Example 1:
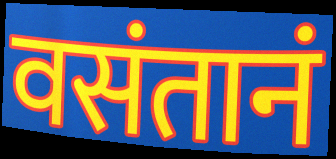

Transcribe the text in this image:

वसंतानं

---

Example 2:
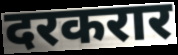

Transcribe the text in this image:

दरकरार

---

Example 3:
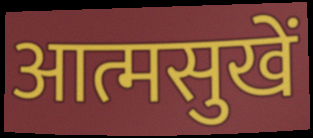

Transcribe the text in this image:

आत्मसुखें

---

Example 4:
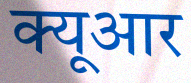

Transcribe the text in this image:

क्‍यूआर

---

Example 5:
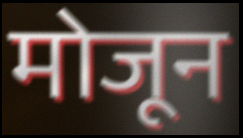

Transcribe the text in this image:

मोजून